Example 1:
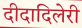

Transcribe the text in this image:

दीदादिलेरी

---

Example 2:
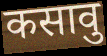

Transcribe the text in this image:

कसावु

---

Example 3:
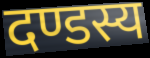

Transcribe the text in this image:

दण्डस्य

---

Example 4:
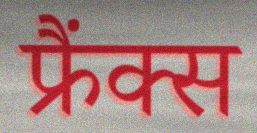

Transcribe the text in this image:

फ्रैंक्स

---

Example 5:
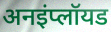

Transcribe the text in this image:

अनइंप्लॉयड